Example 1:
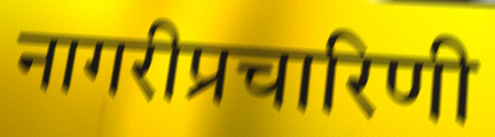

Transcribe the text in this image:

नागरीप्रचारिणी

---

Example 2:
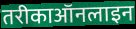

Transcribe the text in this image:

तरीकाऑनलाइन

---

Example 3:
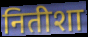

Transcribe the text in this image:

नितीशा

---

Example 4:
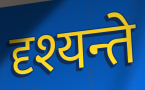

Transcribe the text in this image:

दृश्यन्ते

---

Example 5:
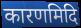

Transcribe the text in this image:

कारणमिदि